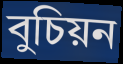
বুচিয়ন